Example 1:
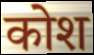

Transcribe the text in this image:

कोश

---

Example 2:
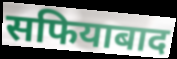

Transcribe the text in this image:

सफियाबाद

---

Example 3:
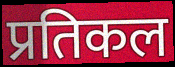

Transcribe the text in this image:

प्रतिकल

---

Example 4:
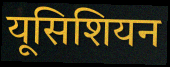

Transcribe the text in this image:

यूसिशियन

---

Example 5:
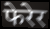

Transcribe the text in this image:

फेरेर